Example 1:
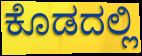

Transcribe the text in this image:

ಕೊಡದಲ್ಲಿ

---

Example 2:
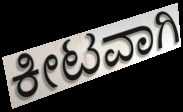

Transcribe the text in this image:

ಕೀಟವಾಗಿ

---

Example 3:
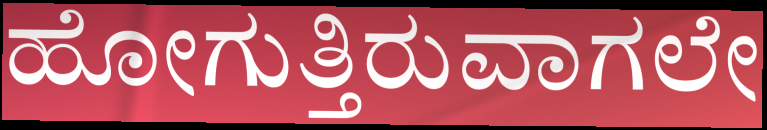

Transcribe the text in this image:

ಹೋಗುತ್ತಿರುವಾಗಲೇ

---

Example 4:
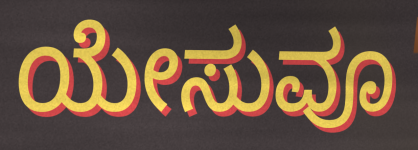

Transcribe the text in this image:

ಯೇಸುವೂ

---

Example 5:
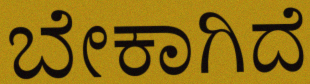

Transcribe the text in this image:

ಬೇಕಾಗಿದೆ